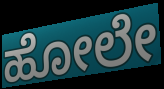
ಹೋಲೇ